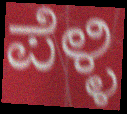
ಪೆಳ್ಳಿ